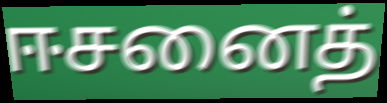
ஈசனைத்